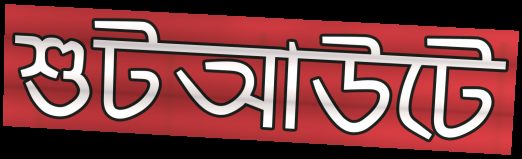
শুটআউটে